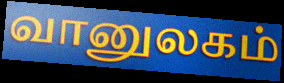
வானுலகம்